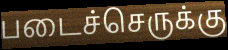
படைச்செருக்கு